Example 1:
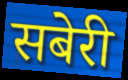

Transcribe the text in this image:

सबेरी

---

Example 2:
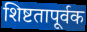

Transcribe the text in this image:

शिष्टतापूर्वक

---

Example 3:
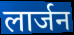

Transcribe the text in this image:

लार्जन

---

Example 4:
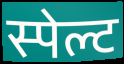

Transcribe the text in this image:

स्पेल्ट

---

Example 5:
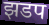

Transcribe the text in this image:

झडप